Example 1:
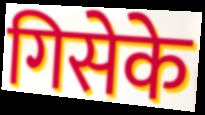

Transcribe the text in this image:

गिसेके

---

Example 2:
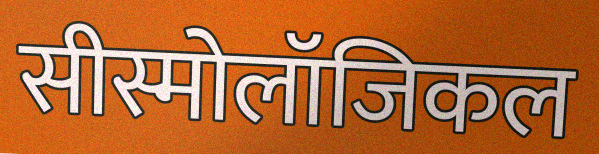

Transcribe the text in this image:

सीस्मोलॉजिकल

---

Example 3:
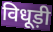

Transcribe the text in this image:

विधूड़ी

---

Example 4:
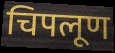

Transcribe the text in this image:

चिपलूण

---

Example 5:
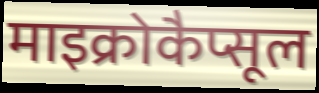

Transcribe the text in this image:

माइक्रोकैप्सूल